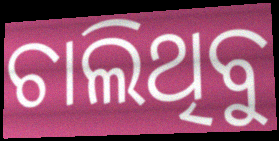
ଚାଲିଥିବୁ